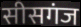
सीसगंज